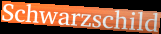
Schwarzschild